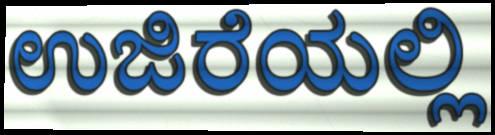
ಉಜಿರೆಯಲ್ಲಿ